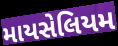
માયસેલિયમ